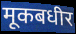
मूकबधीर